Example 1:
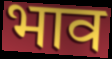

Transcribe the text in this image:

भाव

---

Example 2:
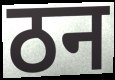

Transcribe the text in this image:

ठन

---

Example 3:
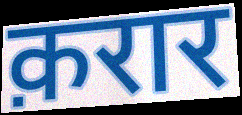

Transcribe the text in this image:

क़रार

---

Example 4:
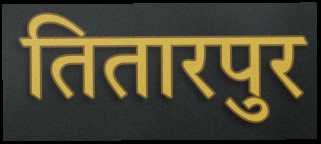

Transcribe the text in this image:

तितारपुर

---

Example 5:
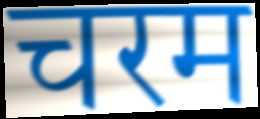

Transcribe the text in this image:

चरम